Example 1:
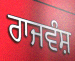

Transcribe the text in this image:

ਰਾਜਵੰਸ਼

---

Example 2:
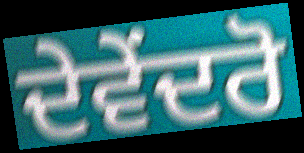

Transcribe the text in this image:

ਦੇਵੇਂਦਰੋ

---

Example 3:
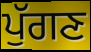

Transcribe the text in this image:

ਪੁੱਗਣ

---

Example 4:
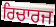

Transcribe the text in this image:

ਰਿਚਾਰਜ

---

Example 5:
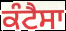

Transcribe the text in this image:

ਕੰਟੈਸਾ